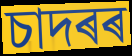
চাদৰৰ